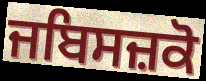
ਜਬਿਸਜ਼ਕੋ